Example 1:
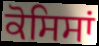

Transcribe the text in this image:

ਕੋਸਿਸਾਂ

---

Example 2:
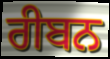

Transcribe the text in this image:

ਰੀਬਨ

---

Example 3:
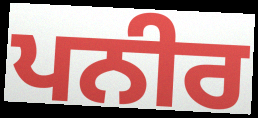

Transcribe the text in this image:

ਪਨੀਰ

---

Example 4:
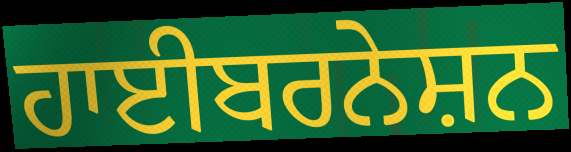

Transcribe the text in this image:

ਹਾਈਬਰਨੇਸ਼ਨ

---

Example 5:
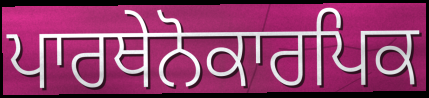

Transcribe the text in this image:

ਪਾਰਥੇਨੋਕਾਰਪਿਕ